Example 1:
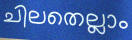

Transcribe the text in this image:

ചിലതെല്ലാം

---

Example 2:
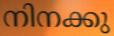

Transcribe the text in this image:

നിനക്കു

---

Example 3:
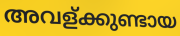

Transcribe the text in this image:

അവള്ക്കുണ്ടായ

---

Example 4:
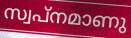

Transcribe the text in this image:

സ്വപ്നമാണു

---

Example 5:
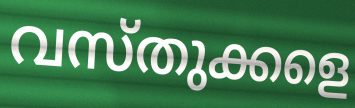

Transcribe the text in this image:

വസ്തുക്കളെ